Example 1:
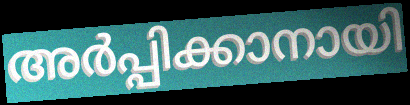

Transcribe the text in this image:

അർപ്പിക്കാനായി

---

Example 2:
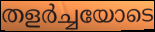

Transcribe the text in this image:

തളർച്ചയോടെ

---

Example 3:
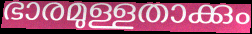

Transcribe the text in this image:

ഭാരമുള്ളതാക്കും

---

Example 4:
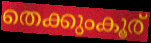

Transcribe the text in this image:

തെക്കുംകൂര്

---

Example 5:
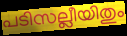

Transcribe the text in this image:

പടിസല്ലീയിതും